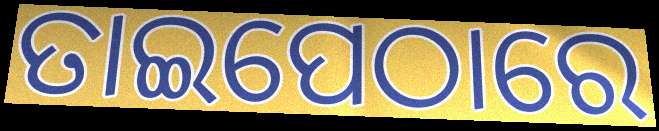
ତାଇପେଠାରେ